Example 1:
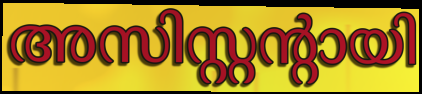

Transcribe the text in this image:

അസിസ്റ്റന്റായി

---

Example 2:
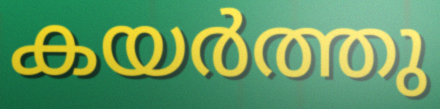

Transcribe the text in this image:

കയർത്തു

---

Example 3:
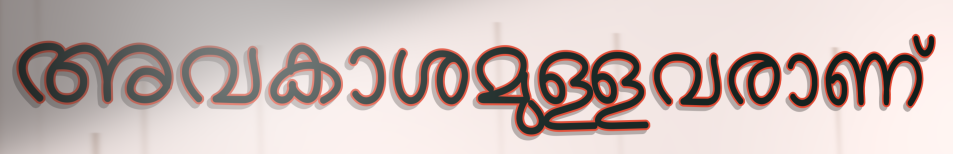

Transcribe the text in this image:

അവകാശമുള്ളവരാണ്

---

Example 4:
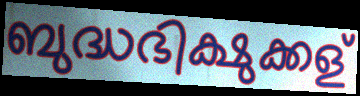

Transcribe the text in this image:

ബുദ്ധഭിക്ഷുക്കള്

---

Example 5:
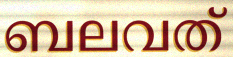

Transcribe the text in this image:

ബലവത്